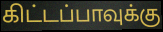
கிட்டப்பாவுக்கு